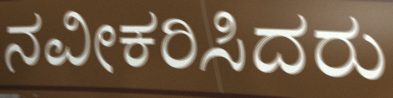
ನವೀಕರಿಸಿದರು